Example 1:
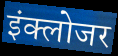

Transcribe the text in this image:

इंक्लोजर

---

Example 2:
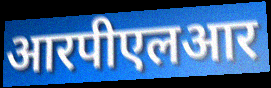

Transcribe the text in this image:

आरपीएलआर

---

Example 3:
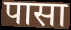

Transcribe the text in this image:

पासा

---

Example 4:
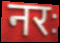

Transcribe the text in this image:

नरः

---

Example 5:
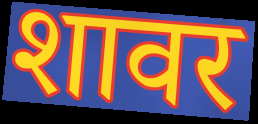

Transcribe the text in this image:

शावर